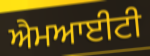
ਐਮਆਈਟੀ